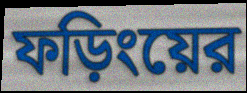
ফড়িংয়ের